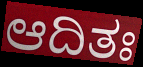
ಆದಿತಃ